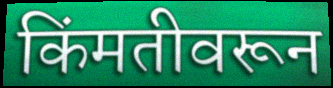
किंमतीवरून